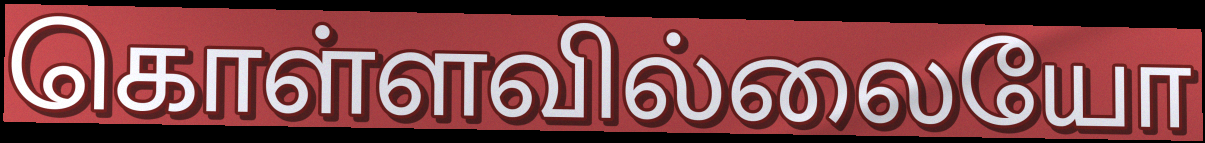
கொள்ளவில்லையோ